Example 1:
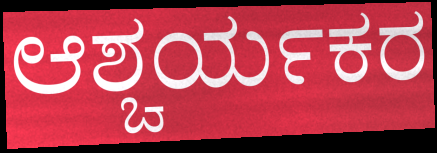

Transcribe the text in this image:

ಆಶ್ಚರ್ಯಕರ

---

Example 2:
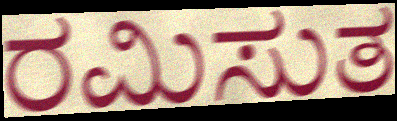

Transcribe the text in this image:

ರಮಿಸುತ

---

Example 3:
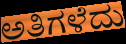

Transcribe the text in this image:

ಅತಿಗಳೆದು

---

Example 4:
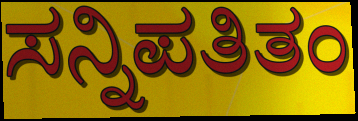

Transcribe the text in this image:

ಸನ್ನಿಪತಿತಂ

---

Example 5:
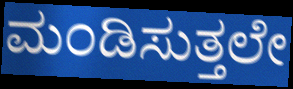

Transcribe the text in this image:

ಮಂಡಿಸುತ್ತಲೇ